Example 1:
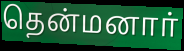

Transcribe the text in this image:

தென்மனார்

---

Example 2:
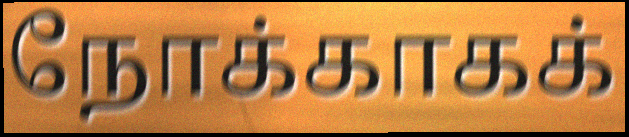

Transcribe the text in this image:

நோக்காகக்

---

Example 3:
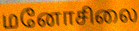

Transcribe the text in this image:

மனோசிலை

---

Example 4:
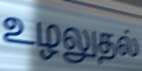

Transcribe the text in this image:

உழலுதல்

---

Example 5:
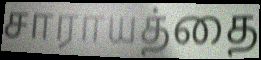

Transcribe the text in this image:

சாராயத்தை